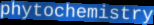
phytochemistry